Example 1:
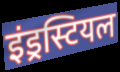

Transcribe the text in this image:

इंड्रस्टियल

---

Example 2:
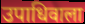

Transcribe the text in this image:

उपाधिवाला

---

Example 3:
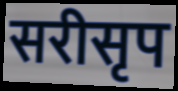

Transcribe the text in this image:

सरीसृप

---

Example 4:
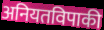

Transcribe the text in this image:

अनियतविपाकी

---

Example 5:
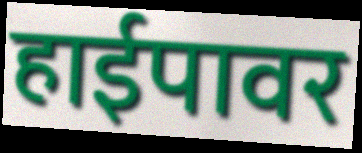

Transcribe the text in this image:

हाईपावर